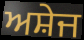
ਅਸ਼ੇਜ